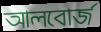
আলবোর্জ